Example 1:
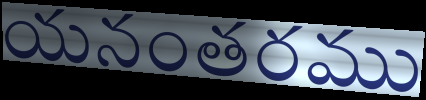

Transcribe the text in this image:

యనంతరము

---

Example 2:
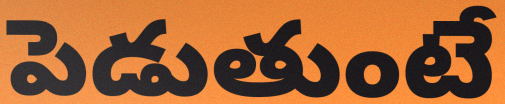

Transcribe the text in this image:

పెడుతుంటే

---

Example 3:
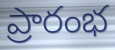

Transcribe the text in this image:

ప్రారంభ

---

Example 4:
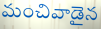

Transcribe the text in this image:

మంచివాడైన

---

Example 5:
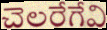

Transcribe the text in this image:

చెలరేగేవి